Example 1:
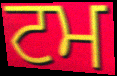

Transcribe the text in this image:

ਟਮ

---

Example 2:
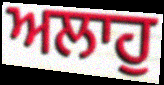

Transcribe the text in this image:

ਅਲਾਹੁ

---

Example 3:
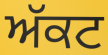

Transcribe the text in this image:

ਅੱਕਟ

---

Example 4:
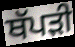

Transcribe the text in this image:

ਥੱਪੜੀ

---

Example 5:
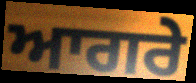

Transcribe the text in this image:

ਆਗਰੇ